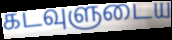
கடவுளுடைய